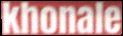
khonale